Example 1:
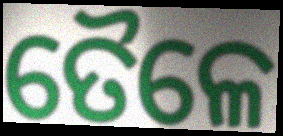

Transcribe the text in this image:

ତୈଳେ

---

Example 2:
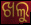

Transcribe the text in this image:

ଖଲୁ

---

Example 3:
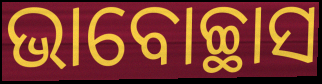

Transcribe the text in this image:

ଭାବୋଚ୍ଛାସ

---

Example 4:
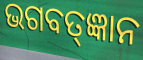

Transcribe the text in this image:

ଭଗବତ୍‌ଜ୍ଞାନ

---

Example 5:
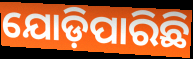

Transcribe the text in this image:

ଯୋଡ଼ିପାରିଛି